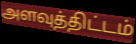
அளவுத்திட்டம்